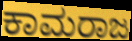
ಕಾಮರಾಜ